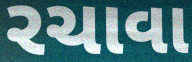
રચાવા